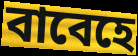
বাবেহে